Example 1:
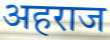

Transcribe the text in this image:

अहराज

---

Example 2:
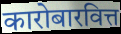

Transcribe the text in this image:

कारोबारवित्त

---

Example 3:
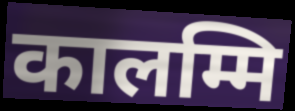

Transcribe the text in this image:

कालम्मि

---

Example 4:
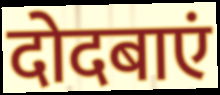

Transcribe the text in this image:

दोदबाएं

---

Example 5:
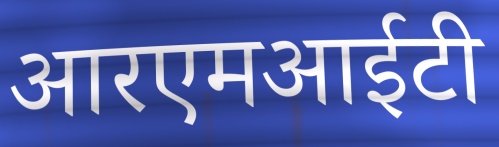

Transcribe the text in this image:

आरएमआईटी